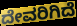
ದೇವರಿಗಿದೆ